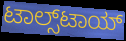
ಟಾಲ್ಸ್‌ಟಾಯ್